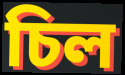
চিল